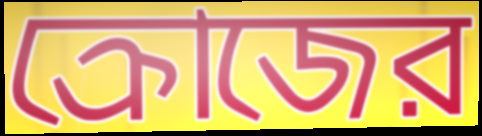
ক্রোজের